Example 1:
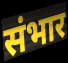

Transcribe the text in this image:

संभार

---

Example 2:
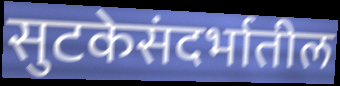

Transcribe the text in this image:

सुटकेसंदर्भातील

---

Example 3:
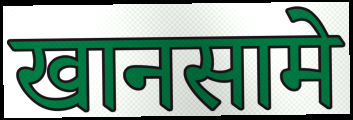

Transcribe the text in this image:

खानसामे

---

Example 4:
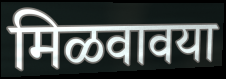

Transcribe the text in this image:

मिळवावया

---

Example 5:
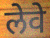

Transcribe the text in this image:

लेवे